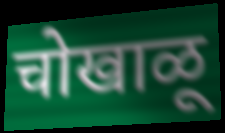
चोखाळू